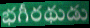
భగీరథుడు